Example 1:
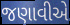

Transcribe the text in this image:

જણાવીએ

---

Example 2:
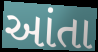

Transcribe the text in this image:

આંતા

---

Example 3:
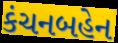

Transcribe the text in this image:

કંચનબહેન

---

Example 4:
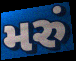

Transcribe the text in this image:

મરું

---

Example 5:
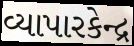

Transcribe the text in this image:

વ્યાપારકેન્દ્ર